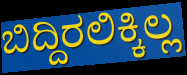
ಬಿದ್ದಿರಲಿಕ್ಕಿಲ್ಲ